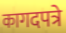
कागदपत्रे